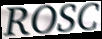
ROSC